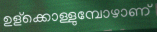
ഉള്ക്കൊള്ളുമ്പോഴാണ്